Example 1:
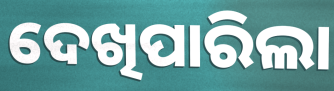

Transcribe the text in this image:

ଦେଖିପାରିଲା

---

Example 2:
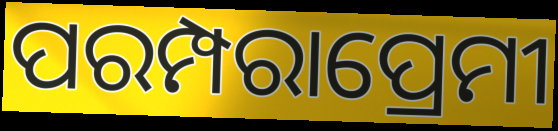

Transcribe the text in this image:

ପରମ୍ପରାପ୍ରେମୀ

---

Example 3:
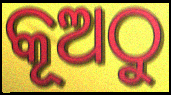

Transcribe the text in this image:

କୂଅଠୁ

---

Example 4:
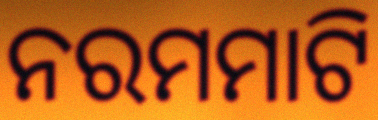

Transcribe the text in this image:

ନରମମାଟି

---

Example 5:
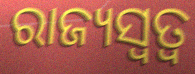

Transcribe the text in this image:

ରାଜ୍ୟସ୍ଵତ୍ଵ